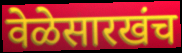
वेळेसारखंच